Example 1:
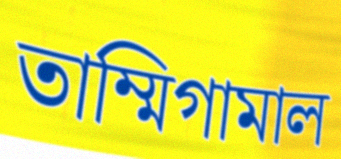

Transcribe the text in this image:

তাম্মিগামাল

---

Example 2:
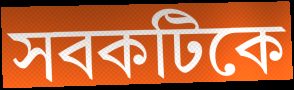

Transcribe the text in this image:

সবকটিকে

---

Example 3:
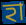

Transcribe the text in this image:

হা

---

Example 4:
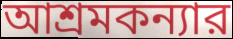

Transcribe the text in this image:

আশ্রমকন্যার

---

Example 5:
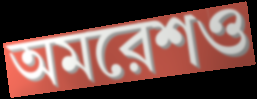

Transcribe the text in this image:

অমরেশও